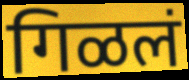
गिळलं